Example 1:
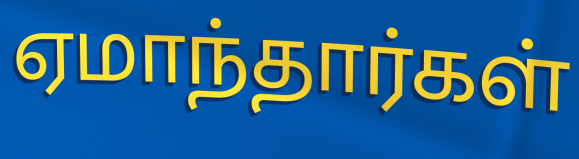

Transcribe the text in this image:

ஏமாந்தார்கள்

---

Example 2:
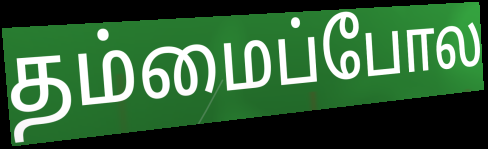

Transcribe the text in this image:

தம்மைப்போல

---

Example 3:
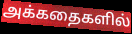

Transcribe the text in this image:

அக்கதைகளில்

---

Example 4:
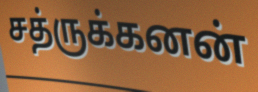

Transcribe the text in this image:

சத்ருக்கனன்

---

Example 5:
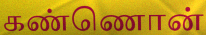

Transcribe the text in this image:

கண்ணொன்